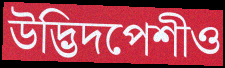
উদ্ভিদপেশীও